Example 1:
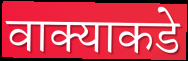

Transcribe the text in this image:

वाक्याकडे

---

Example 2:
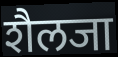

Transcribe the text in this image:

शैलजा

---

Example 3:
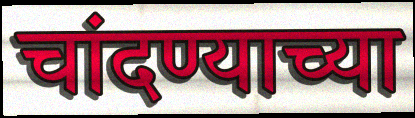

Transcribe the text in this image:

चांदण्याच्या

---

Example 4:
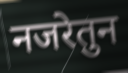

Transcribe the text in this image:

नजरेतुन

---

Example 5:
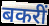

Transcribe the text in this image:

बकरीं